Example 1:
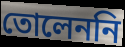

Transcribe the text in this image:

তোলেননি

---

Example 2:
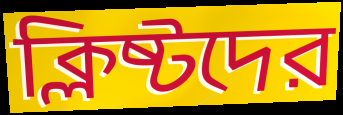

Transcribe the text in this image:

ক্লিষ্টদের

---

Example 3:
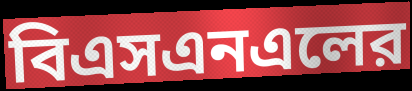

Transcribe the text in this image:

বিএসএনএলের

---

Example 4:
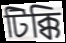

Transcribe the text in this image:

টিক্কি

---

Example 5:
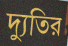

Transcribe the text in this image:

দ্যুতির